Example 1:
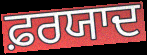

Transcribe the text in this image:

ਫ਼ਰਯਾਦ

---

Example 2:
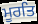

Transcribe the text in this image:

ਮੂਰਤਿ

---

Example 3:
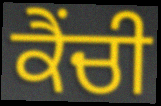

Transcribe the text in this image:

ਕੈਂਚੀ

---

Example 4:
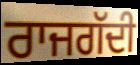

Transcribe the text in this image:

ਰਾਜਗੱਦੀ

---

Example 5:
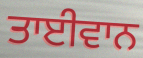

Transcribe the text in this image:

ਤਾਈਵਾਨ